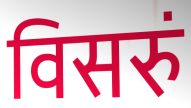
विसरुं